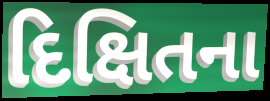
દિક્ષિતના